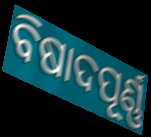
ବିଷାଦପୂର୍ଣ୍ଣ